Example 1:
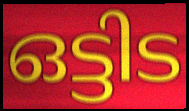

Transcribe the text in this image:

ഒട്ടിട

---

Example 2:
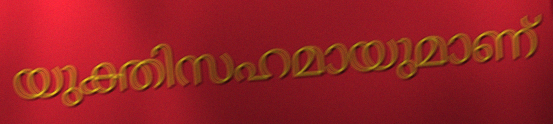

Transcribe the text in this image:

യുക്തിസഹമായുമാണ്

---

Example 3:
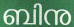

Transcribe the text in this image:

ബിനു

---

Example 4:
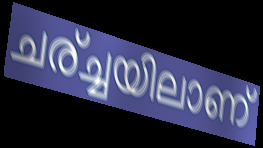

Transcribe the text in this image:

ചര്ച്ചയിലാണ്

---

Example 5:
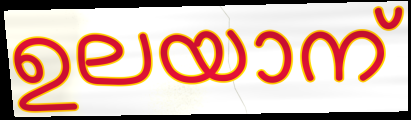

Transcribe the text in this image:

ഉലയാന്